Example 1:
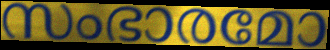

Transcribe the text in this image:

സംഭാരമോ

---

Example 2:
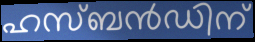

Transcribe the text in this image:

ഹസ്ബൻഡിന്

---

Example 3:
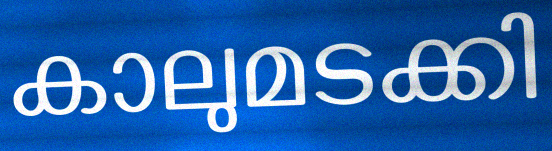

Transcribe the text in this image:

കാലുമടക്കി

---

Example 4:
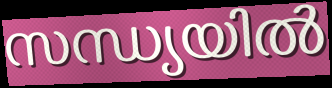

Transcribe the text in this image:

സന്ധ്യയിൽ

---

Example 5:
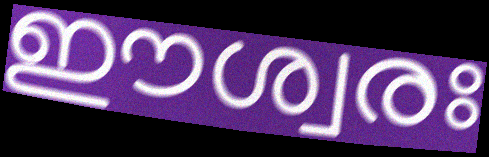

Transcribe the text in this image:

ഈശ്വരഃ